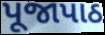
પૂજાપાઠ